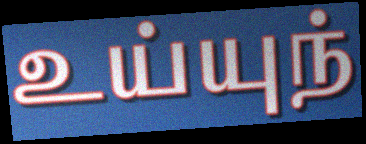
உய்யுந்